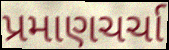
પ્રમાણચર્ચા